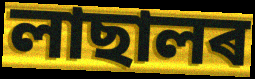
লাছালৰ